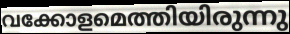
വക്കോളമെത്തിയിരുന്നു